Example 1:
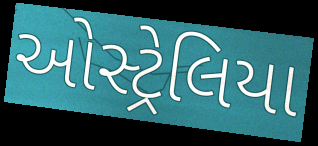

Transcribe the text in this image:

ઓસ્ટ્રેલિયા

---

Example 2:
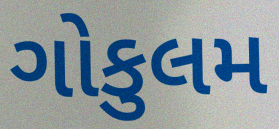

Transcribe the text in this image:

ગોકુલમ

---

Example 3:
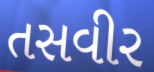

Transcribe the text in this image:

તસવીર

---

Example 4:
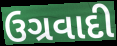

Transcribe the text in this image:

ઉગ્રવાદી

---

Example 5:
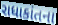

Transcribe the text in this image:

રાધાકાંતના